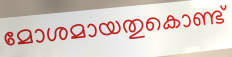
മോശമായതുകൊണ്ട്